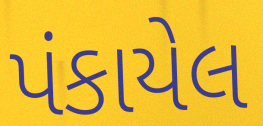
પંકાયેલ